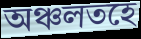
অঞ্চলতহে